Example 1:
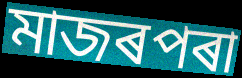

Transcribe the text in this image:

মাজৰপৰা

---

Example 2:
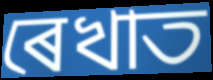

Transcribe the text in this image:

ৰেখাত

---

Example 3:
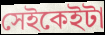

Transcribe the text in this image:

সেইকেইটা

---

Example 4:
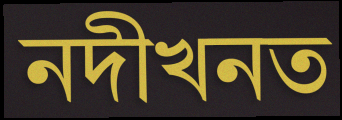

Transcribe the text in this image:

নদীখনত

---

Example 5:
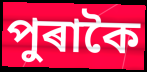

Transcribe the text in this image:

পুৰাকৈ